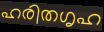
ഹരിതഗൃഹ